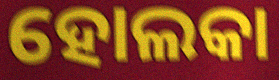
ହୋଲକା